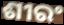
ଶୀରଂ